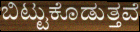
ಬಿಟ್ಟುಕೊಡುತ್ತವೆ